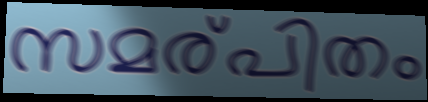
സമര്പിതം